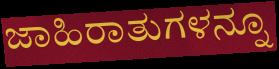
ಜಾಹಿರಾತುಗಳನ್ನೂ